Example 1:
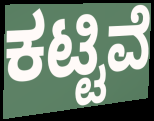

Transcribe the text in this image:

ಕಟ್ಟಿವೆ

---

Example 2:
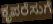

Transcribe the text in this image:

ಕೃಪರೆಸುಗೆ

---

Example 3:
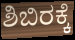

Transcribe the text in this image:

ಶಿಬಿರಕ್ಕೆ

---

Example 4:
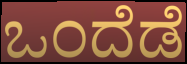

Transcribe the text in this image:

ಒಂದೆಡೆ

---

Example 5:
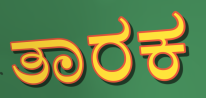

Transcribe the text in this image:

ತಾರಕ